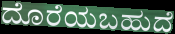
ದೊರೆಯಬಹುದೆ